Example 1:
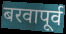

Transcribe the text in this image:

बरवापूर्व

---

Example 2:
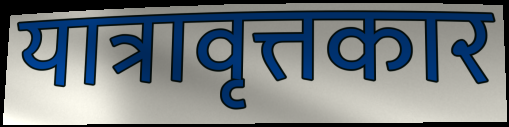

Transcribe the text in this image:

यात्रावृत्तकार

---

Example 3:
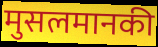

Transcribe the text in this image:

मुसलमानकी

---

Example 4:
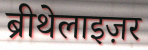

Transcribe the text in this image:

ब्रीथेलाइज़र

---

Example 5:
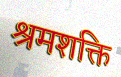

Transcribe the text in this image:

श्रमशक्ति